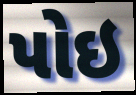
પોઇ